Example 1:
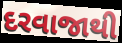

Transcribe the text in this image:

દરવાજાથી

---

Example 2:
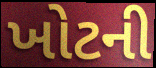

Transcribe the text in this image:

ખોટની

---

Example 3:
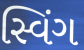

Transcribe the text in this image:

સ્વિંગ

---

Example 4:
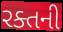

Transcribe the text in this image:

રક્તની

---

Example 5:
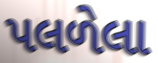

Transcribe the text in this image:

પલળેલા